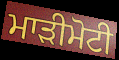
ਮਾੜੀਮੋਟੀ